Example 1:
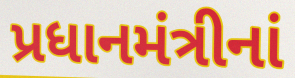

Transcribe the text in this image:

પ્રધાનમંત્રીનાં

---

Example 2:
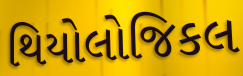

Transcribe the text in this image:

થિયોલોજિકલ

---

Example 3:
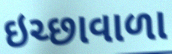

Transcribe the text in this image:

ઇચ્છાવાળા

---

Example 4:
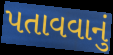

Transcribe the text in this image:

પતાવવાનું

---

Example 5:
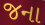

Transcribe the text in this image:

જના